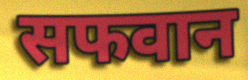
सफवान